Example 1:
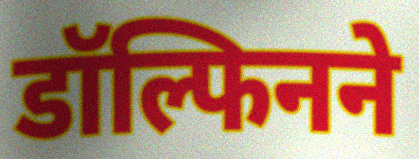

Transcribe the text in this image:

डॉल्फिनने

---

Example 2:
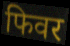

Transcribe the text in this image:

फिवर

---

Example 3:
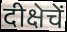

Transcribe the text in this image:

दीक्षेचें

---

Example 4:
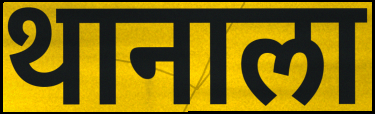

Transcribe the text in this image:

थानाला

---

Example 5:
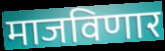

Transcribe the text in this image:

माजविणार